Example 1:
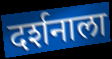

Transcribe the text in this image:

दर्शनाला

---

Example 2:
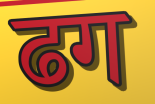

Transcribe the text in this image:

ढग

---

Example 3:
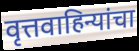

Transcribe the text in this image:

वृत्तवाहिन्यांचा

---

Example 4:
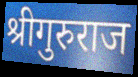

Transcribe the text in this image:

श्रीगुरुराज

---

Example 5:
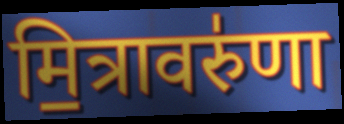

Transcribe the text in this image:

मि॒त्रावरु॑णा